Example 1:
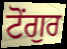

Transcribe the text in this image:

ਟੋਂਗੁਰ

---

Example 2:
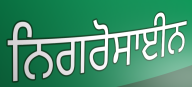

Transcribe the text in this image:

ਨਿਗਰੋਸਾਈਨ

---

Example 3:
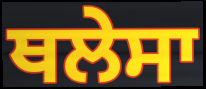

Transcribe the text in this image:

ਥਲੇਸਾ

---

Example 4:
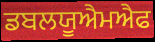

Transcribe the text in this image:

ਡਬਲਯੂਐਮਐਫ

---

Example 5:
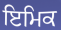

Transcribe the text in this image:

ਇਮਿਕ